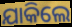
ଯାକିଲେ